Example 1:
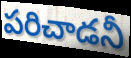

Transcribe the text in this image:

పరిచాడనీ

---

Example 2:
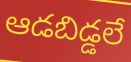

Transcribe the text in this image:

ఆడబిడ్డలే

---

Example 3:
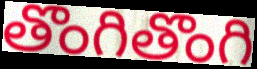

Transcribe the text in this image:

తొంగితొంగి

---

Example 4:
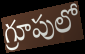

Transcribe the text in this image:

గ్రూపులో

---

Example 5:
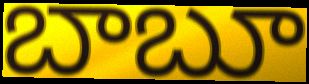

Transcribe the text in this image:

బాబూ